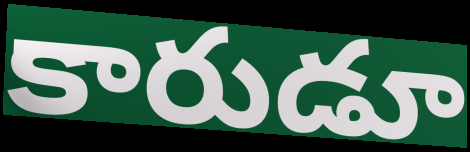
కారుడూ